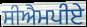
ਸੀਐਮਪੀਏ